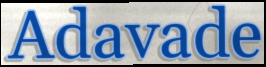
Adavade